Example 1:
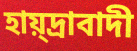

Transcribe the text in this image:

হায়্দ্রাবাদী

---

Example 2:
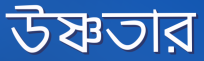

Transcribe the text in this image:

উষ্ণতার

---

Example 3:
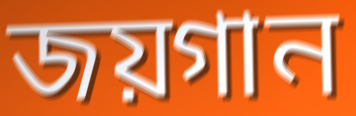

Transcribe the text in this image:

জয়গান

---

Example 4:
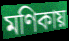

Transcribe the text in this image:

মণিকায়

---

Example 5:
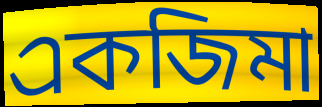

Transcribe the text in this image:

একজিমা